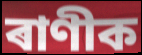
ৰাণীক